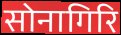
सोनागिरि